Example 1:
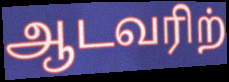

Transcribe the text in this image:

ஆடவரிற்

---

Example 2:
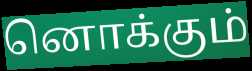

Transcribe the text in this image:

னொக்கும்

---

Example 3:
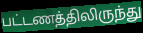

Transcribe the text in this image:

பட்டணத்திலிருந்து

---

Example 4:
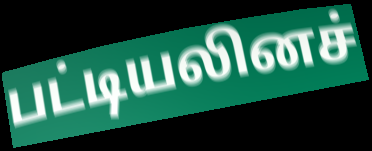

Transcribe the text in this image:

பட்டியலினச்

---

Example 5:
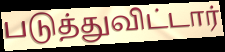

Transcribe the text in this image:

படுத்துவிட்டார்